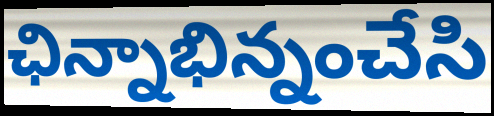
ఛిన్నాభిన్నంచేసి